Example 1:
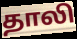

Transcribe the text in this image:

தாலி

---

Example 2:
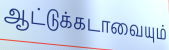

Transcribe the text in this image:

ஆட்டுக்கடாவையும்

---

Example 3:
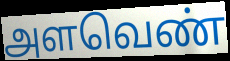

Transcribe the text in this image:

அளவெண்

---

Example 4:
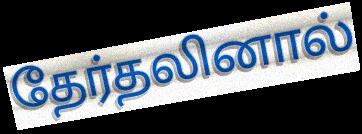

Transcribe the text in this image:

தேர்தலினால்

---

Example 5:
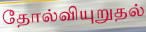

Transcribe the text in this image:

தோல்வியுறுதல்